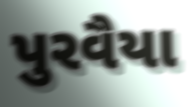
પુરવૈયા